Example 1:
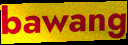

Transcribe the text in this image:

bawang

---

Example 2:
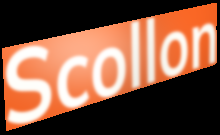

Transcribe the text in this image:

Scollon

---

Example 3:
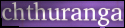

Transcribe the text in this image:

chthuranga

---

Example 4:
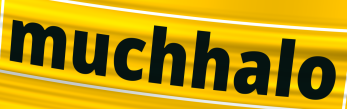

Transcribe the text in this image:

muchhalo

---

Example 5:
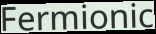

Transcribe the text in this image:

Fermionic